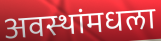
अवस्थांमधला